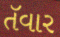
તૅવાર